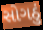
સોગઠું